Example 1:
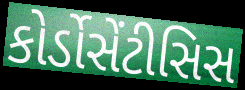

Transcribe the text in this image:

કોર્ડોસેંટીસિસ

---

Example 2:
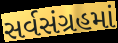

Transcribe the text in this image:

સર્વસંગ્રહમાં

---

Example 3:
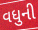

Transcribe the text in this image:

વધુની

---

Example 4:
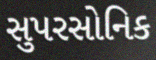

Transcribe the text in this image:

સુપરસોનિક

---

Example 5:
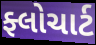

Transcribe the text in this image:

ફ્લોચાર્ટ